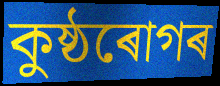
কুষ্ঠৰোগৰ